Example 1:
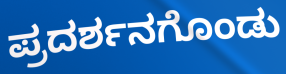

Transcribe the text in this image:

ಪ್ರದರ್ಶನಗೊಂಡು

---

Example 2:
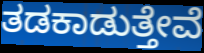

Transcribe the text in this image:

ತಡಕಾಡುತ್ತೇವೆ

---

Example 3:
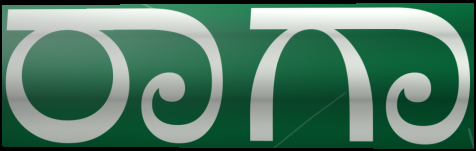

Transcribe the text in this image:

ರಾಗಾ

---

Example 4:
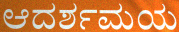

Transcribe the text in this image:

ಆದರ್ಶಮಯ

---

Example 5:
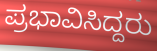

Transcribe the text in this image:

ಪ್ರಭಾವಿಸಿದ್ದರು